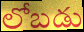
లోబడు